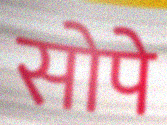
सोपे